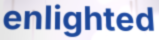
enlighted